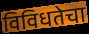
विविधतेचा